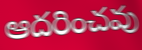
ఆదరించవు